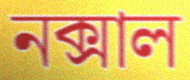
নক্সাল